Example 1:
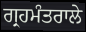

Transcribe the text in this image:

ਗ੍ਰਹਮੰਤਰਾਲੇ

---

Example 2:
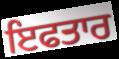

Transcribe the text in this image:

ਇਫਤਾਰ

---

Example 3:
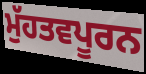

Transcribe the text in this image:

ਮੁੱਹਤਵਪੂਰਨ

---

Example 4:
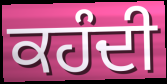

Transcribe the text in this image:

ਕਹੰਦੀ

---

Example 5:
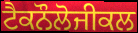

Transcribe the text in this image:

ਟੈਕਨੌਲੋਜੀਕਲ